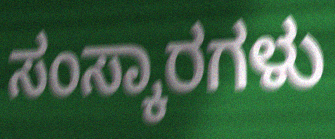
ಸಂಸ್ಕಾರಗಳು